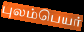
புலம்பெயர்